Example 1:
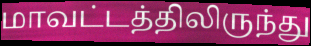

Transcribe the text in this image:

மாவட்டத்திலிருந்து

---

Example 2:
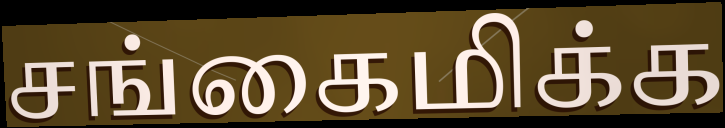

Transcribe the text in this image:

சங்கைமிக்க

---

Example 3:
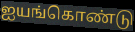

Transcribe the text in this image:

ஐயங்கொண்டு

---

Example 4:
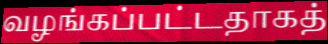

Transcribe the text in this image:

வழங்கப்பட்டதாகத்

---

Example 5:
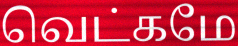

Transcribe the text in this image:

வெட்கமே